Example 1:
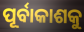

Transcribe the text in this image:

ପୂର୍ବାକାଶକୁ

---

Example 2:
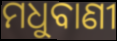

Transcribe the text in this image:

ମଧୁବାଣୀ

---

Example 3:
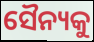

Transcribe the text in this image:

ସୈନ୍ୟକୁ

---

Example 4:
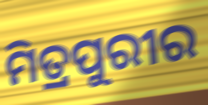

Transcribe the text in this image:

ମିତ୍ରପୁରୀର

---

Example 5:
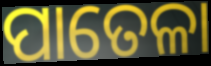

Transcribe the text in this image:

ପାତେଳା